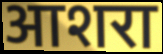
आशरा